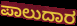
ಪಾಲುದಾರ